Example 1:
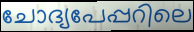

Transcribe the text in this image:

ചോദ്യപേപ്പറിലെ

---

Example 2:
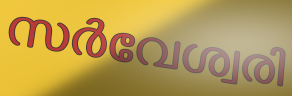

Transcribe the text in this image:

സർവേശ്വരി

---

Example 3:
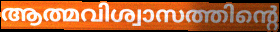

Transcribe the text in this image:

ആത്മവിശ്വാസത്തിന്റെ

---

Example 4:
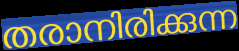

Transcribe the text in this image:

തരാനിരിക്കുന്ന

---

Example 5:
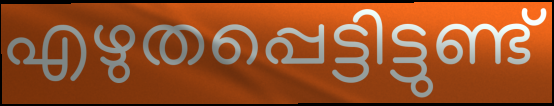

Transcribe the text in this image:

എഴുതപ്പെട്ടിട്ടുണ്ട്